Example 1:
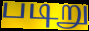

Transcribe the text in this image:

படிறு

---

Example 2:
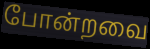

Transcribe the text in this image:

போன்றவை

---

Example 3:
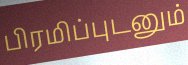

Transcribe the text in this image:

பிரமிப்புடனும்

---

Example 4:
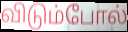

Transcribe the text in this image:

விடும்போல்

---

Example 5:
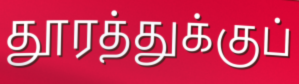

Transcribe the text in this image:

தூரத்துக்குப்